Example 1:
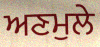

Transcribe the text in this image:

ਅਣਮੁਲੇ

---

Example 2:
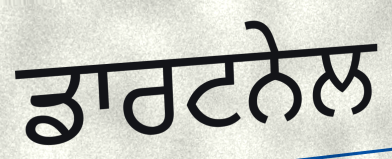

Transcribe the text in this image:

ਡਾਰਟਨੇਲ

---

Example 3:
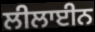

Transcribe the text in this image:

ਲੀਲਾਈਨ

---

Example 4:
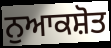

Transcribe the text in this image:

ਨੁਆਕਸ਼ੋਤ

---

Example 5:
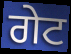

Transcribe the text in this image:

ਗੇਟ